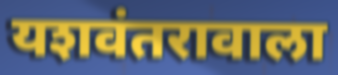
यशवंतरावाला